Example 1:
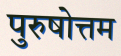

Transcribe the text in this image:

पुरुषोत्तम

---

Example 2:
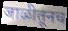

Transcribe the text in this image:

जाळीतूनच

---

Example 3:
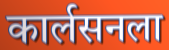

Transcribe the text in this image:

कार्लसनला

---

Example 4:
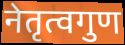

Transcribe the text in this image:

नेतृत्वगुण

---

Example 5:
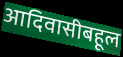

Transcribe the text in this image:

आदिवासीबहूल